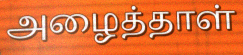
அழைத்தாள்